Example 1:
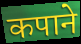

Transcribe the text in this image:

कपाने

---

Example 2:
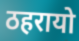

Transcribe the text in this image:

ठहरायो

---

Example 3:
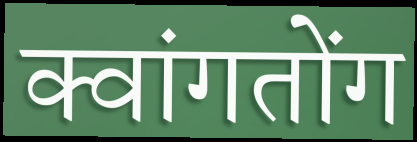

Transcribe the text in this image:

क्वांगतोंग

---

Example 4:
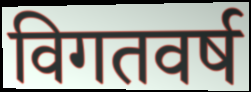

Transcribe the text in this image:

विगतवर्ष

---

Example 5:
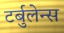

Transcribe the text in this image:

टर्बुलेन्स